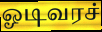
ஓடிவரச்